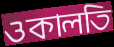
ওকালতি